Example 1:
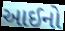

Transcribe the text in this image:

આઈનો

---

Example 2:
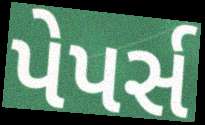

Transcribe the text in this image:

પેપર્સ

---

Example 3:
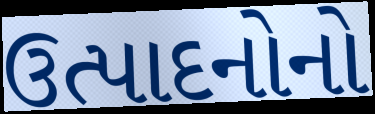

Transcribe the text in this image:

ઉત્પાદનોનો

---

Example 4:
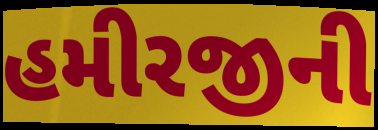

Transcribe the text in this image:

હમીરજીની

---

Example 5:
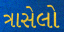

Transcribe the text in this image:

ત્રાસેલો